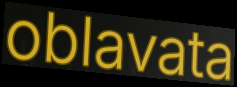
oblavata